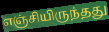
எஞ்சியிருந்தது